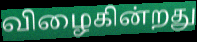
விழைகின்றது